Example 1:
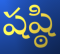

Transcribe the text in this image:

షష్ఠి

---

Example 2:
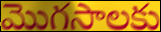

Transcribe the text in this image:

మొగసాలకు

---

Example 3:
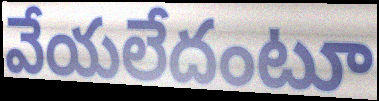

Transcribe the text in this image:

వేయలేదంటూ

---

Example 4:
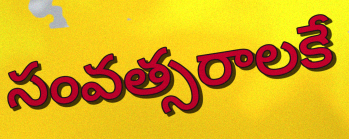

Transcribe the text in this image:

సంవత్సరాలకే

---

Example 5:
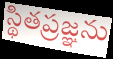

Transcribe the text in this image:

స్థితప్రజ్ఞను